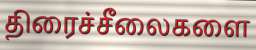
திரைச்சீலைகளை